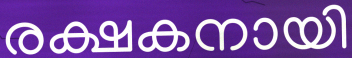
രക്ഷകനായി